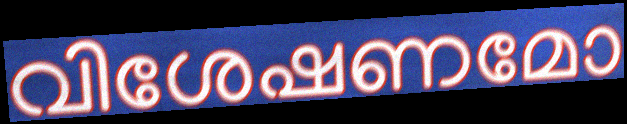
വിശേഷണമോ